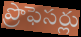
ప్రొఫెసర్లు